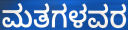
ಮತಗಳವರ